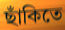
ছাঁকিতে